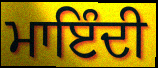
ਮਾਇੰਦੀ